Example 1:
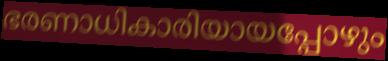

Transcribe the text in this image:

ഭരണാധികാരിയായപ്പോഴും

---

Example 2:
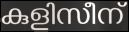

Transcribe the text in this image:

കുളിസീന്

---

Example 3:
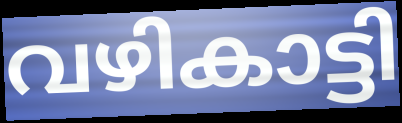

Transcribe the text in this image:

വഴികാട്ടി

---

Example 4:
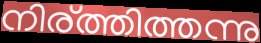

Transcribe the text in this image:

നിര്ത്തിത്തന്നു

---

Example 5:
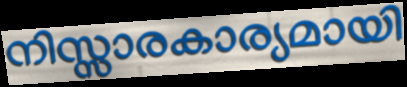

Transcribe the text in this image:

നിസ്സാരകാര്യമായി